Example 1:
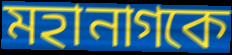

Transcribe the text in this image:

মহানাগকে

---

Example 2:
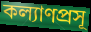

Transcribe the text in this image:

কল্যাণপ্রসূ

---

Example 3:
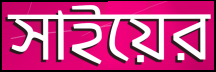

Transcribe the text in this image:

সাইয়ের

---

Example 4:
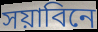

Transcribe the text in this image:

সয়াবিনে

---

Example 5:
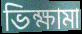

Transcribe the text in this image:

ভিক্ষামা